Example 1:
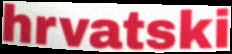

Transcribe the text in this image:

hrvatski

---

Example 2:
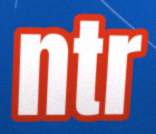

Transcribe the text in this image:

ntr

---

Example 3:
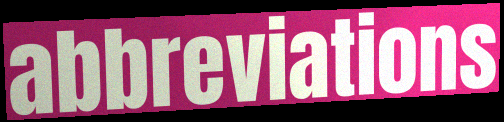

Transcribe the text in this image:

abbreviations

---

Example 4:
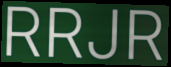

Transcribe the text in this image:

RRJR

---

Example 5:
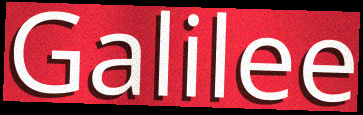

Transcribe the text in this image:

Galilee